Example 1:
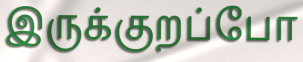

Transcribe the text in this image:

இருக்குறப்போ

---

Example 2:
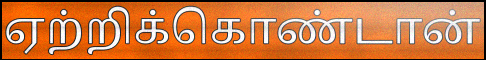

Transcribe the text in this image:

ஏற்றிக்கொண்டான்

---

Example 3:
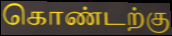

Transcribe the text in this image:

கொண்டற்கு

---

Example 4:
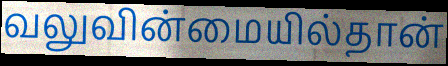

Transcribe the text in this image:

வலுவின்மையில்தான்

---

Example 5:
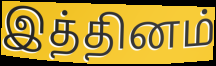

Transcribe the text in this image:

இத்தினம்